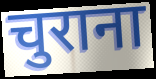
चुराना